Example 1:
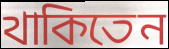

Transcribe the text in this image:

থাকিতেন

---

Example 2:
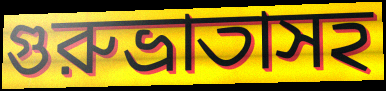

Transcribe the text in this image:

গুরুভ্রাতাসহ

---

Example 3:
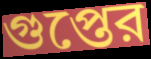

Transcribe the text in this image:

গুপ্তের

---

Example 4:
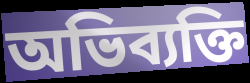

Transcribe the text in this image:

অভিব্যক্তি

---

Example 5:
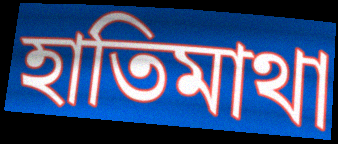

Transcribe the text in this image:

হাতিমাথা